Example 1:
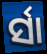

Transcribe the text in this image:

ର୍ସା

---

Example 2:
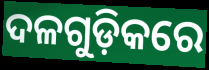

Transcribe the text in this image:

ଦଳଗୁଡ଼ିକରେ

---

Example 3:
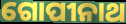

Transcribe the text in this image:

ଗୋପୀନାଥ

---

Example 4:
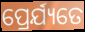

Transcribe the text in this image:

ପ୍ରେର୍ଯ୍ୟତେ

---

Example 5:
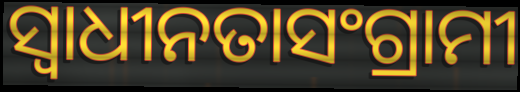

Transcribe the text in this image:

ସ୍ଵାଧୀନତାସଂଗ୍ରାମୀ